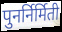
पुनर्निर्मिती